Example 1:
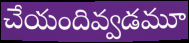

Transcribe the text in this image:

చేయందివ్వడమూ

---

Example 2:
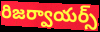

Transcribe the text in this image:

రిజర్వాయర్స్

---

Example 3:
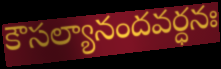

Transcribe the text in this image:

కౌసల్యానందవర్ధనః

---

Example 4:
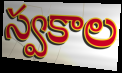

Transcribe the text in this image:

స్వకాల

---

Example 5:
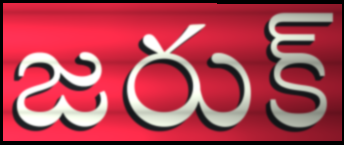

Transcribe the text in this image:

జరుక్